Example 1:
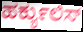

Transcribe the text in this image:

ಹರ್ಕ್ಯುಲಿಸ್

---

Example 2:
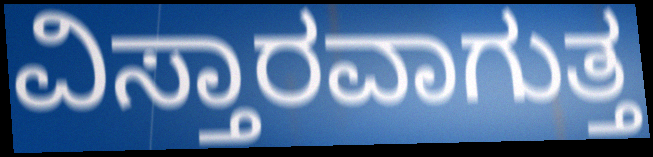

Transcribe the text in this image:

ವಿಸ್ತಾರವಾಗುತ್ತ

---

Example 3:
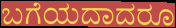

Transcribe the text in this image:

ಬಗೆಯದಾದರೂ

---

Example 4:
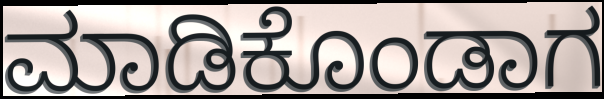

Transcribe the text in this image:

ಮಾಡಿಕೊಂಡಾಗ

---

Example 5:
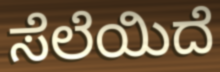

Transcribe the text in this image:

ಸೆಲೆಯಿದೆ